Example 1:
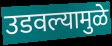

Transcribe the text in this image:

उडवल्यामुळे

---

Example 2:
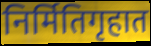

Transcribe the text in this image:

निर्मितिगृहात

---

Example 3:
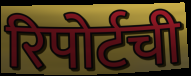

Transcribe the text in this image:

रिपोर्टची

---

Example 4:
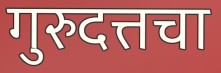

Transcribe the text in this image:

गुरुदत्तचा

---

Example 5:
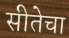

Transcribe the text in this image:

सीतेचा